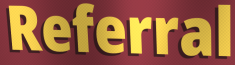
Referral